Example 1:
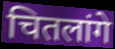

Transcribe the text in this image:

चितलांगे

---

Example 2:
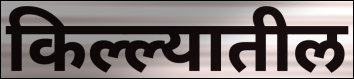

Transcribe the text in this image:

किल्ल्यातील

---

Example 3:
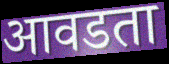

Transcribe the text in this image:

आवडता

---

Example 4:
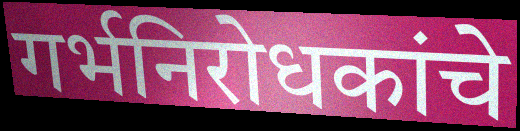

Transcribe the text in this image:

गर्भनिरोधकांचे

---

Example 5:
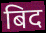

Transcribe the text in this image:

बिद